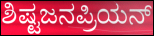
ಶಿಷ್ಟಜನಪ್ರಿಯನ್